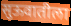
सुऊवातीला